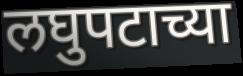
लघुपटाच्या